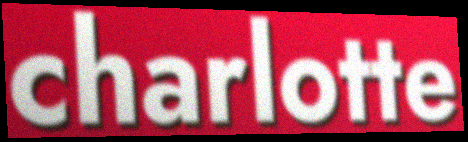
charlotte